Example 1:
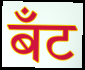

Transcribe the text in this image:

बँट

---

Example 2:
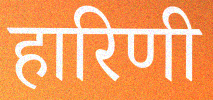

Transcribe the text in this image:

हारिणी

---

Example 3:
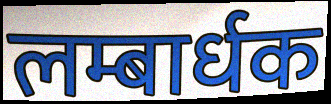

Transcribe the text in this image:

लम्बार्धक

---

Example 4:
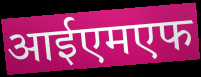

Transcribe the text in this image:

आईएमएफ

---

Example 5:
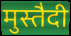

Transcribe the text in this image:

मुस्तैदी